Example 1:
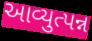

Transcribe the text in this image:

આવ્યુત્પન્ન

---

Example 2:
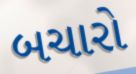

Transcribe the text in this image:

બચારો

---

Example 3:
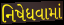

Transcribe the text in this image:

નિષેધવામાં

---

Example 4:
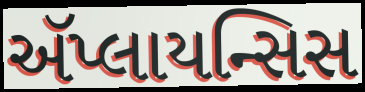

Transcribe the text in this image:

ઍપ્લાયન્સિસ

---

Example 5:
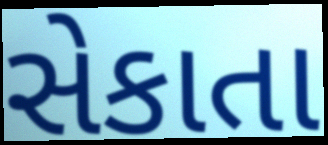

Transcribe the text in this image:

સેકાતા